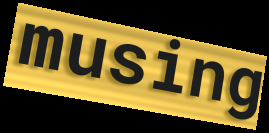
musing